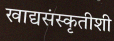
खाद्यसंस्कृतीशी